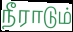
நீராடும்